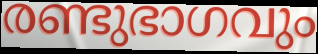
രണ്ടുഭാഗവും